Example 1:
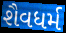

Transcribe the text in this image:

શૈવધર્મ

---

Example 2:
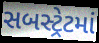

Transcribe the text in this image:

સબસ્ટ્રેટમાં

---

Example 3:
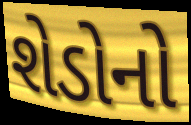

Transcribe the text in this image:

શેડોનો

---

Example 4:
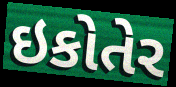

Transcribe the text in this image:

ઇકોતેર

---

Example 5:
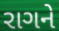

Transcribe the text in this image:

રાગને